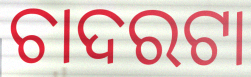
ଚାଦରଟା